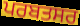
ਪਰਬਤਸਰ